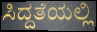
ಸಿದ್ದತೆಯಲ್ಲಿ